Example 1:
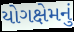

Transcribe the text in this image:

યોગક્ષેમનું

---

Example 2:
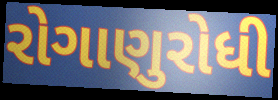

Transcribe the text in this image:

રોગાણુરોધી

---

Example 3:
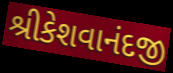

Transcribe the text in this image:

શ્રીકેશવાનંદજી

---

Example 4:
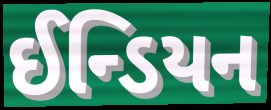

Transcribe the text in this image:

ઈન્ડિયન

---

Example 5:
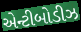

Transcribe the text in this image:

એન્ટીબોડીઝ